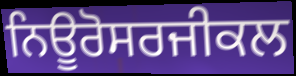
ਨਿਊਰੋਸਰਜੀਕਲ